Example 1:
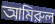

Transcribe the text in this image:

আমিরুল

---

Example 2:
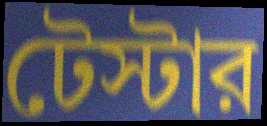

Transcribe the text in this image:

টেস্টার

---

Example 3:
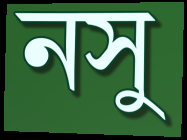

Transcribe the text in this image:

নসু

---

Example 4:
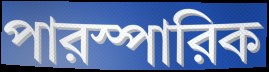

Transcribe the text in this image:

পারস্পারিক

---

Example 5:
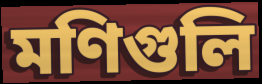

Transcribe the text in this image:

মণিগুলি